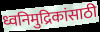
ध्वनिमुद्रिकांसाठी